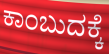
ಕಾಂಬುದಕ್ಕೆ